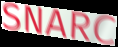
SNARC